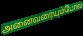
அனைவரையும்போல